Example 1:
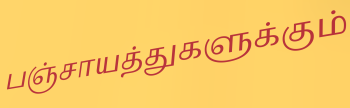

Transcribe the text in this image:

பஞ்சாயத்துகளுக்கும்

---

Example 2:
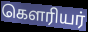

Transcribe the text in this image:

கௌரியர்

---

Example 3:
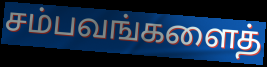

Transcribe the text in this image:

சம்பவங்களைத்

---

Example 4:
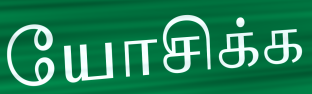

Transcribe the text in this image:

யோசிக்க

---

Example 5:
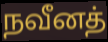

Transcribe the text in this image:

நவீனத்